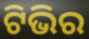
ଟିଭିର